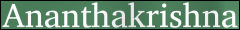
Ananthakrishna